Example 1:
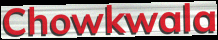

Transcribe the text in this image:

Chowkwala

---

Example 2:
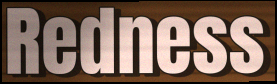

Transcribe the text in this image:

Redness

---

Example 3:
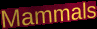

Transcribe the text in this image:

Mammals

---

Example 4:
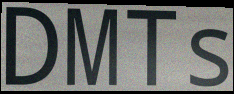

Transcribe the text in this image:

DMTs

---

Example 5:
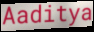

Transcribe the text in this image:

Aaditya